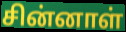
சின்னாள்